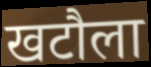
खटौला